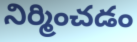
నిర్మించడం